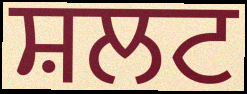
ਸ਼ਲਟ